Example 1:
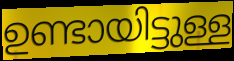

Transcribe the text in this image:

ഉണ്ടായിട്ടുള്ള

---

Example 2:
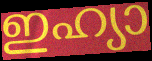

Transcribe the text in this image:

ഇഹ്യാ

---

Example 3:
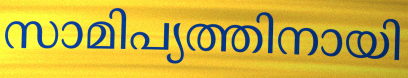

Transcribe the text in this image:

സാമിപ്യത്തിനായി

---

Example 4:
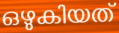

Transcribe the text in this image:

ഒഴുകിയത്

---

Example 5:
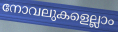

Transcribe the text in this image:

നോവലുകളെല്ലാം